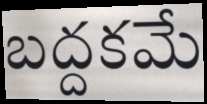
బద్దకమే